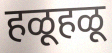
हळूहळू